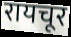
रायचूर